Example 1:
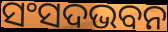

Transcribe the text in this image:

ସଂସଦଭବନ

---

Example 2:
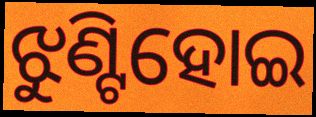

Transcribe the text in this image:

ଝୁଣ୍ଟିହୋଇ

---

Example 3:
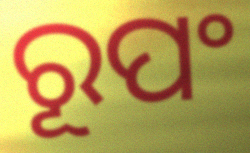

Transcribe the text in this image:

ରୂପଂ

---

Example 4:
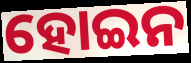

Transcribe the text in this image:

ହୋଇନ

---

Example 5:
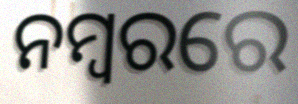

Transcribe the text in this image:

ନମ୍ବରରେ